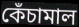
কেঁচামাল